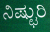
ನಿಷ್ಟುರಿ